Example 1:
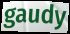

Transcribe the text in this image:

gaudy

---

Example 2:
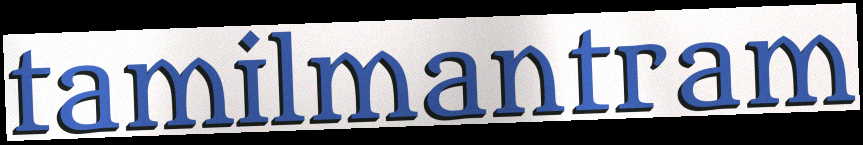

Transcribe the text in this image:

tamilmantram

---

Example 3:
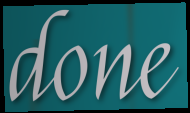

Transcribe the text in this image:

done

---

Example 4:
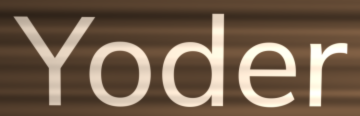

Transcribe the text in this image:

Yoder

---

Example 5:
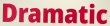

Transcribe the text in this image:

Dramatic